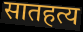
सातहत्य